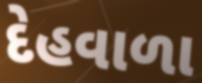
દેહવાળા